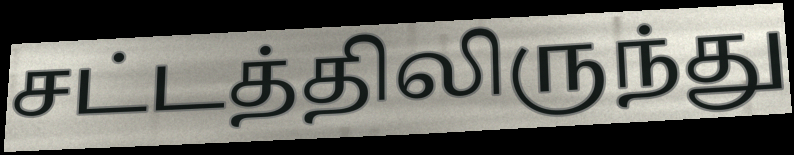
சட்டத்திலிருந்து